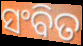
ସଂବିତ